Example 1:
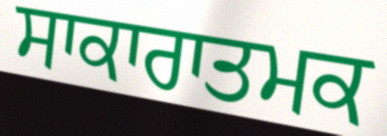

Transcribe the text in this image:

ਸਾਕਾਰਾਤਮਕ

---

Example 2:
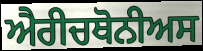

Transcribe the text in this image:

ਐਰੀਚਥੋਨੀਅਸ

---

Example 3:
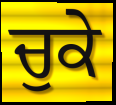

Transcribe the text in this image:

ਚੁਕੇ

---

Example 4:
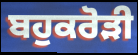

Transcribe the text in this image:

ਬਹੁਕਰੋੜੀ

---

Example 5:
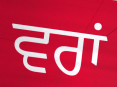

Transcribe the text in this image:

ਵਰਾਂ